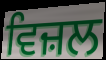
ਵਿਜ਼ਲ